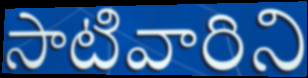
సాటివారిని